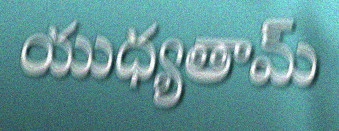
యుధ్యతామ్